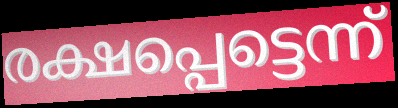
രക്ഷപ്പെട്ടെന്ന്